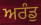
ਅਰੰਡੁ